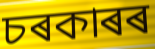
চৰকাৰৰ